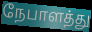
நேபாளத்து